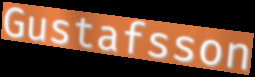
Gustafsson